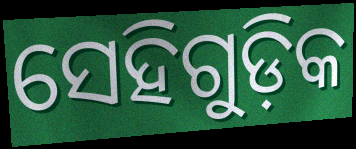
ସେହିଗୁଡ଼ିକ